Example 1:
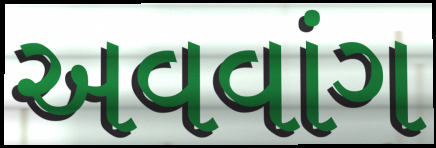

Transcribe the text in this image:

અવવાંગ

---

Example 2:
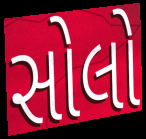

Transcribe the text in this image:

સોલો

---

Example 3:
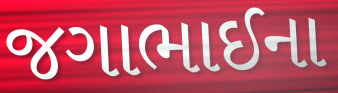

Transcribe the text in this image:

જગાભાઈના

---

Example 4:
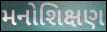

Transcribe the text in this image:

મનોશિક્ષણ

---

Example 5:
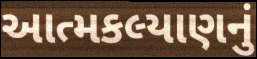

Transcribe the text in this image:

આત્મકલ્યાણનું